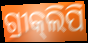
ଗ୍ରୀକ୍‌ଲିପି